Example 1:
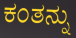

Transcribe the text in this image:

ಕಂತನ್ನು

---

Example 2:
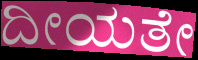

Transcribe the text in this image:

ದೀಯತೇ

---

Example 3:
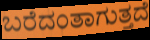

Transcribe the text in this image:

ಬರೆದಂತಾಗುತ್ತದೆ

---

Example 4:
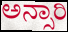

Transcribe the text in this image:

ಅನ್ಸಾರಿ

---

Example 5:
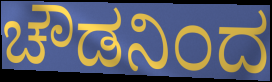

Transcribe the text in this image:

ಚೌಡನಿಂದ